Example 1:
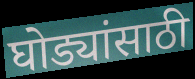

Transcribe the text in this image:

घोड्यांसाठी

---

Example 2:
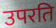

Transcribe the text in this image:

उपरति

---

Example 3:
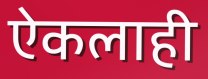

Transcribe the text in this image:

ऐकलाही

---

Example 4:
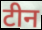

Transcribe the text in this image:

टीन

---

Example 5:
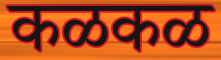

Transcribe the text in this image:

कळकळ